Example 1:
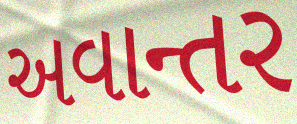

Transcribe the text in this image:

અવાન્તર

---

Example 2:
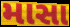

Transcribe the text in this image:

માસા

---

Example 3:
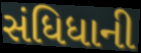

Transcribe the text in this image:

સંધિધાની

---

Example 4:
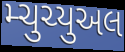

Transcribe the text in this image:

મ્ચુચ્યુઅલ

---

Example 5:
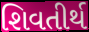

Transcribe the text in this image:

શિવતીર્થ